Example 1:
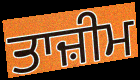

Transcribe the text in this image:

ਤਾਜ਼ੀਮ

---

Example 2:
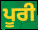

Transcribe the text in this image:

ਪੂਰੀ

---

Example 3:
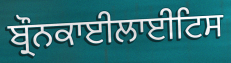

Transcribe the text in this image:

ਬ੍ਰੌਨਕਾਈਲਾਈਟਿਸ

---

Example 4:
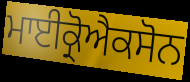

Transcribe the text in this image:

ਮਾਈਕ੍ਰੋਐਕਸੋਨ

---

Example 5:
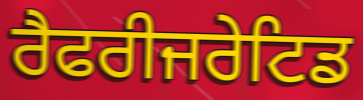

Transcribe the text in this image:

ਰੈਫਰੀਜਰੇਟਿਡ